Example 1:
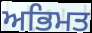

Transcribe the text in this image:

ਅਭਿਮਤ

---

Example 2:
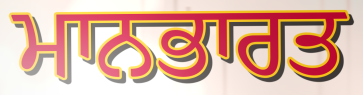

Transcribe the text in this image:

ਮਾਨਭਾਰਤ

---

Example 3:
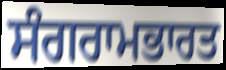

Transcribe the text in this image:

ਸੰਗਰਾਮਭਾਰਤ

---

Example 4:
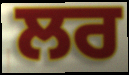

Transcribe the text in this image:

ਲਰ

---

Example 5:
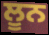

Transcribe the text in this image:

ਲੂਨ